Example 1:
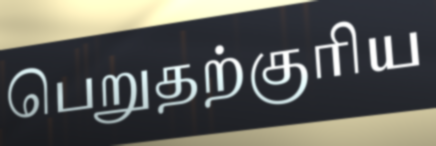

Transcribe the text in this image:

பெறுதற்குரிய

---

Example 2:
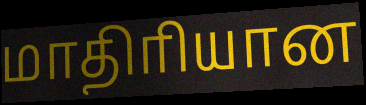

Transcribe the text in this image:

மாதிரியான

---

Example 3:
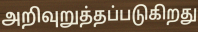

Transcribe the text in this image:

அறிவுறுத்தப்படுகிறது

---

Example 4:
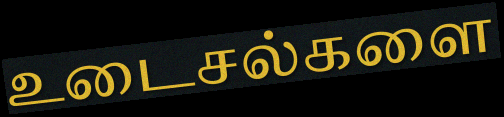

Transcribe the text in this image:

உடைசல்களை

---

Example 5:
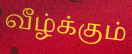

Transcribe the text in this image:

வீழ்க்கும்